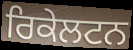
ਰਿਕੇਲਟਨ